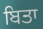
ਬਿਤਾ